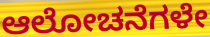
ಆಲೋಚನೆಗಳೇ